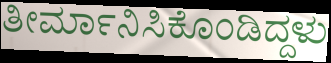
ತೀರ್ಮಾನಿಸಿಕೊಂಡಿದ್ದಳು